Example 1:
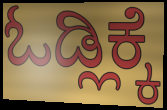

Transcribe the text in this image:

ಓಡ್ಲಿಕ್ಕೆ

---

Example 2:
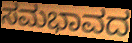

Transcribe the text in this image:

ಸಮಭಾವದ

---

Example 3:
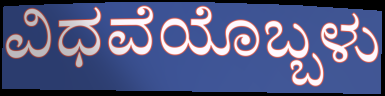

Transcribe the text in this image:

ವಿಧವೆಯೊಬ್ಬಳು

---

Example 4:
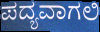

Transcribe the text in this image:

ಪದ್ಯವಾಗಲಿ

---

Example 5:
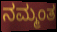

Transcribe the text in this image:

ನಮ್ಮಂತ